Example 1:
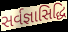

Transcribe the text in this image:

સર્વજ્ઞાસિદ્ધિ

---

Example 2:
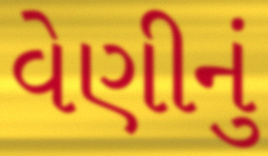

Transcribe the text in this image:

વેણીનું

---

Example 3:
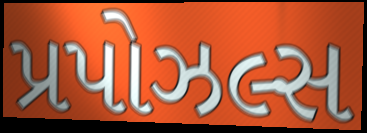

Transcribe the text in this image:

પ્રપોઝલ્સ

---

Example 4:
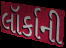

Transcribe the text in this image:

લૉર્કાની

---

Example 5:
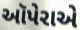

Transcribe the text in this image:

ઑપેરાએ